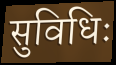
सुविधिः